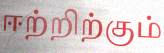
ஈற்றிற்கும்